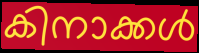
കിനാക്കൾ